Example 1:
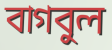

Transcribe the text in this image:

বাগবুল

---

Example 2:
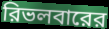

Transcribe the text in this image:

রিভলবারের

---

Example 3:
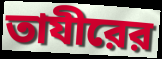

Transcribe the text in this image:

তাযীরের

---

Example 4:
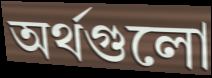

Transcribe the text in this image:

অর্থগুলো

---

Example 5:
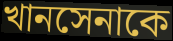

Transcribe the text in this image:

খানসেনাকে